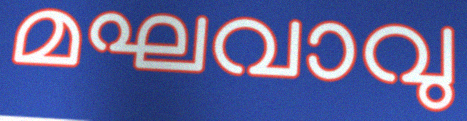
മഘവാവു